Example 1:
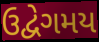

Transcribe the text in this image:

ઉદ્વેગમય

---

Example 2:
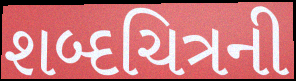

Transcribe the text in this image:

શબ્દચિત્રની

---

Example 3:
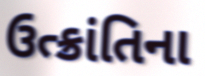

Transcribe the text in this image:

ઉત્ક્રાંતિના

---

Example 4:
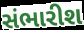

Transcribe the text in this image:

સંભારીશ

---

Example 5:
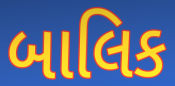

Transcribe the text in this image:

બાલિક